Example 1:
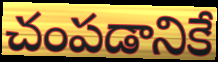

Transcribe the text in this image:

చంపడానికే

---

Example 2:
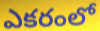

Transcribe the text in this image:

ఎకరంలో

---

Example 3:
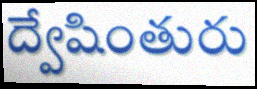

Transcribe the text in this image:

ద్వేషింతురు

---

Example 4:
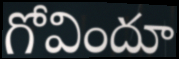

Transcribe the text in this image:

గోవిందూ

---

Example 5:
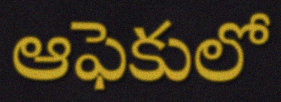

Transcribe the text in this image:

ఆఫెకులో